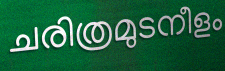
ചരിത്രമുടനീളം